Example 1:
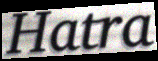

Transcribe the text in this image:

Hatra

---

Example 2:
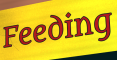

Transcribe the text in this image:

Feeding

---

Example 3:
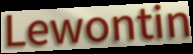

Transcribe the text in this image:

Lewontin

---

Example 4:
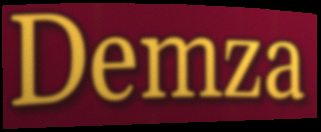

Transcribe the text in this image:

Demza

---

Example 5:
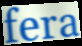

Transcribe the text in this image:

fera